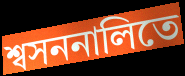
শ্বসননালিতে